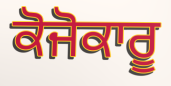
ਕੋਜੋਕਾਰੂ